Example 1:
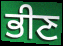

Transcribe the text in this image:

ਭੀਣ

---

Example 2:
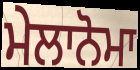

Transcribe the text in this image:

ਮੇਲਾਨੋਮਾ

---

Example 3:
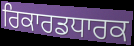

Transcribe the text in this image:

ਰਿਕਾਰਡਧਾਰਕ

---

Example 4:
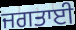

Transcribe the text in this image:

ਜਗਤਾਈ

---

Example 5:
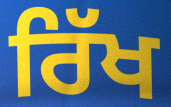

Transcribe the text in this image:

ਰਿੱਖ